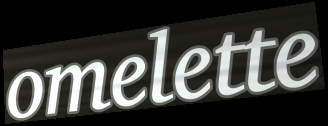
omelette